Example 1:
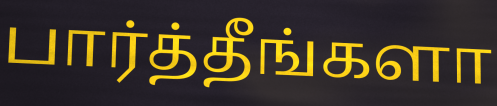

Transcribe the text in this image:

பார்த்தீங்களா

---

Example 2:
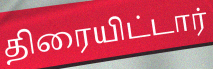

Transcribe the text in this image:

திரையிட்டார்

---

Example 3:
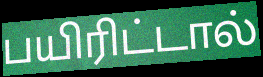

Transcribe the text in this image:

பயிரிட்டால்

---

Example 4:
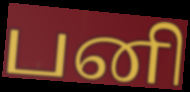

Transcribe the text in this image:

பனி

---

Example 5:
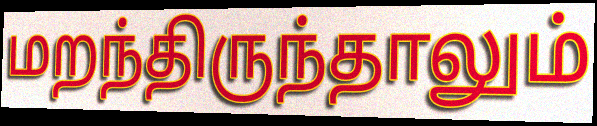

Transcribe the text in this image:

மறந்திருந்தாலும்